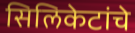
सिलिकेटांचे